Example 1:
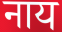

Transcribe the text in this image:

नाय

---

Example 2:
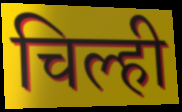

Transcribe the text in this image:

चिल्ही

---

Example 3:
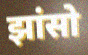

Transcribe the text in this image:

झांसो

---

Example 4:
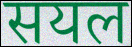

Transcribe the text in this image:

सयल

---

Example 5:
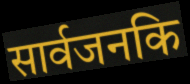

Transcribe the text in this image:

सार्वजनकि